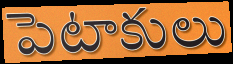
పెటాకులు